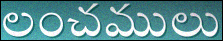
లంచములు